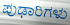
ಪುಢಾರಿಗಳು